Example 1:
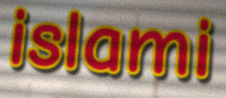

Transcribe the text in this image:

islami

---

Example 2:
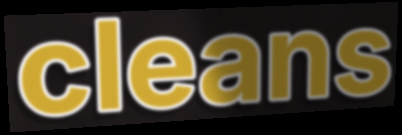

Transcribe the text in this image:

cleans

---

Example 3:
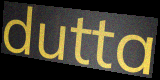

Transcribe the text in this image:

dutta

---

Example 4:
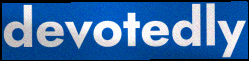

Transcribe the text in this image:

devotedly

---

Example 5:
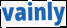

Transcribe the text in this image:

vainly